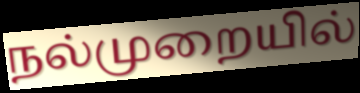
நல்முறையில்